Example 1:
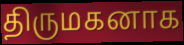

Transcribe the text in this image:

திருமகனாக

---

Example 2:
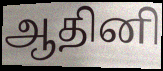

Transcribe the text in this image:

ஆதினி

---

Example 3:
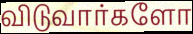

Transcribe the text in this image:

விடுவார்களோ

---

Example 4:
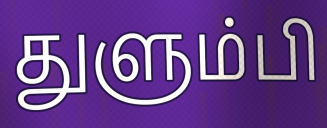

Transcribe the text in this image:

துளும்பி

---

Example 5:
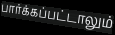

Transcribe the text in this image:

பார்க்கப்பட்டாலும்